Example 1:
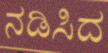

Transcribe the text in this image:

ನಡಿಸಿದ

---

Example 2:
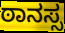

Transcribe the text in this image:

ಠಾನಸ್ಸ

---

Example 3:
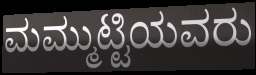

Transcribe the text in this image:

ಮಮ್ಮುಟ್ಟಿಯವರು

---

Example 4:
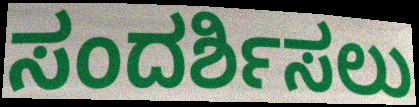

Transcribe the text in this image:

ಸಂದರ್ಶಿಸಲು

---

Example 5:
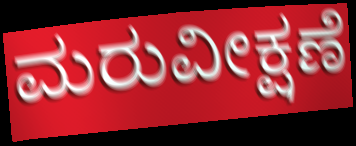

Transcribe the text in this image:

ಮರುವೀಕ್ಷಣೆ